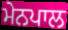
ਮੇਨਪਾਲ